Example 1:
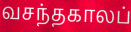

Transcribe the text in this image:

வசந்தகாலப்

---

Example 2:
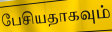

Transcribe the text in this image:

பேசியதாகவும்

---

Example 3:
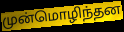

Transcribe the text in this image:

முன்மொழிந்தன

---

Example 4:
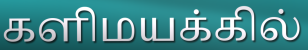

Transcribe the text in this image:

களிமயக்கில்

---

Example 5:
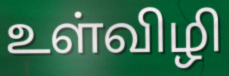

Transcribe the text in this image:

உள்விழி